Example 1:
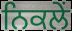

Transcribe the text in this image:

ਨਿਕਲੇਂ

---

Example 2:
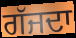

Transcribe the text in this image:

ਗੱਜਦਾ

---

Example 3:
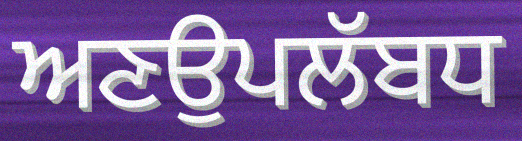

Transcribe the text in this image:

ਅਣਉਪਲੱਬਧ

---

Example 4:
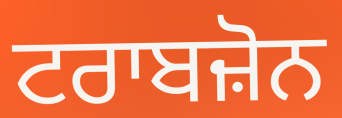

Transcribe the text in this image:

ਟਰਾਬਜ਼ੋਨ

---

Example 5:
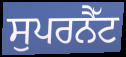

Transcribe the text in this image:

ਸੁਪਰਨੈੱਟ